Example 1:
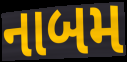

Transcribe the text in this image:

નાબમ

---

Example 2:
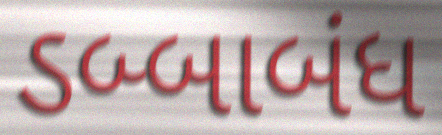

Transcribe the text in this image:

ડબ્બાબંધ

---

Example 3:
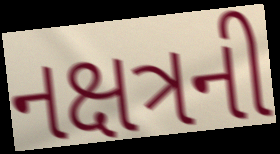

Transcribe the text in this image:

નક્ષત્રની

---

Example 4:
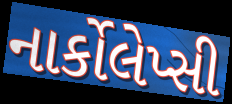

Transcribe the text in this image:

નાર્કોલેપ્સી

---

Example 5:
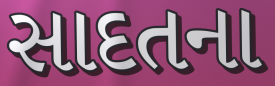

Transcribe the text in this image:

સાદતના